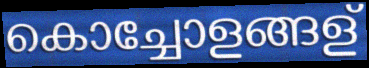
കൊച്ചോളങ്ങള്